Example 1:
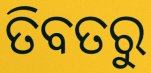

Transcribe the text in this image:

ତିବତରୁ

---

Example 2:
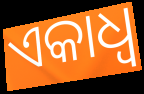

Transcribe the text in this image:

ଏକାଧ୍ଵ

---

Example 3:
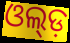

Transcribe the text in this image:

ଓଲ୍ଡ଼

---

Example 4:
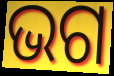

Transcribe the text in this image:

ଭଗ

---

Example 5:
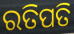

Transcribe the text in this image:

ରତିପତି